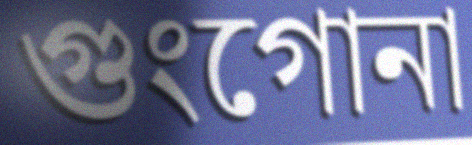
গুংগোনা